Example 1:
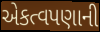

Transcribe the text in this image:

એકત્વપણાની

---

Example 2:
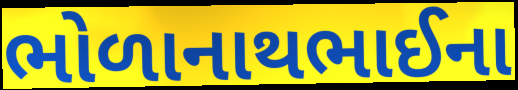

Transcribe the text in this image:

ભોળાનાથભાઈના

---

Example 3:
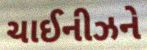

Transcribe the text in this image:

ચાઈનીઝને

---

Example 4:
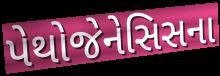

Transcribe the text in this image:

પેથોજેનેસિસના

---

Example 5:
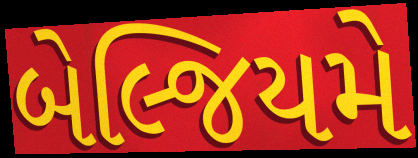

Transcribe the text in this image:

બેલ્જિયમે